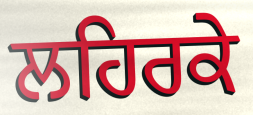
ਲਹਿਰਕੇ